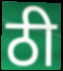
ठी